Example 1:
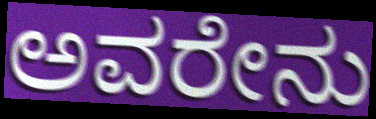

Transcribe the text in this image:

ಅವರೇನು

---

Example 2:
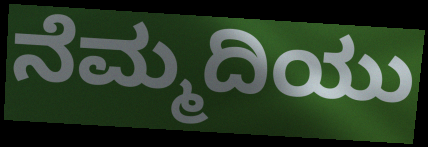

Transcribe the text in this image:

ನೆಮ್ಮದಿಯು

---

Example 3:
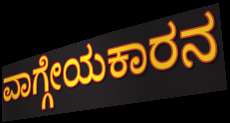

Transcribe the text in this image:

ವಾಗ್ಗೇಯಕಾರನ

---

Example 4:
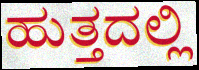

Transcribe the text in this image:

ಹುತ್ತದಲ್ಲಿ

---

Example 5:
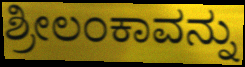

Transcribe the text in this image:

ಶ್ರೀಲಂಕಾವನ್ನು